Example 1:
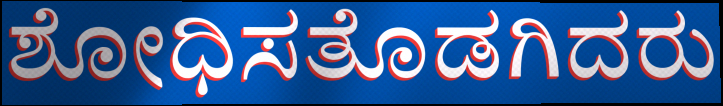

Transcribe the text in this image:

ಶೋಧಿಸತೊಡಗಿದರು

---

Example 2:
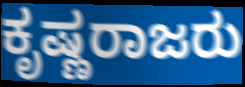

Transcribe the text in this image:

ಕೃಷ್ಣರಾಜರು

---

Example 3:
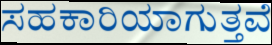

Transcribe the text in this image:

ಸಹಕಾರಿಯಾಗುತ್ತವೆ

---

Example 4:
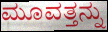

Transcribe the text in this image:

ಮೂವತ್ತನ್ನು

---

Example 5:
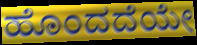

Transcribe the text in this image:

ಹೊಂದದೆಯೇ